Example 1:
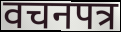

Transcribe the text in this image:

वचनपत्र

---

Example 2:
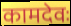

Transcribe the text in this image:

कामदेवः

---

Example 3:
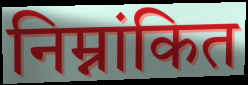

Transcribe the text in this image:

निम्नांकित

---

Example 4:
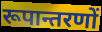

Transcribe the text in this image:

रूपान्तरणों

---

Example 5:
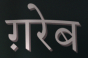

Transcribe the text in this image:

ग़रेब